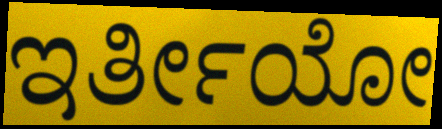
ಇರ್ತೀಯೋ